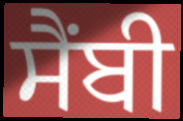
ਸੈਂਬੀ